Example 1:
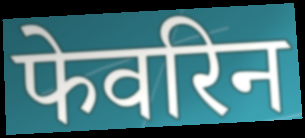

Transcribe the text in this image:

फेवरिन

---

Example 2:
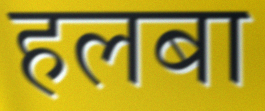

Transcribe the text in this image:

हलबा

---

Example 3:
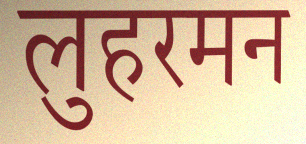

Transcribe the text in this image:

लुहरमन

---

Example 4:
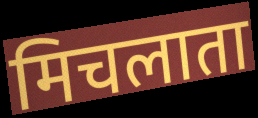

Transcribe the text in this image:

मिचलाता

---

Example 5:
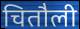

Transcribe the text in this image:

चितौली